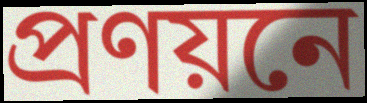
প্রণয়নে